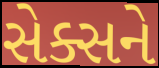
સેક્સને